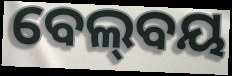
ବେଲ୍‍ବୟ